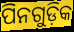
ପିନଗୁଡ଼ିକ